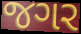
જગર